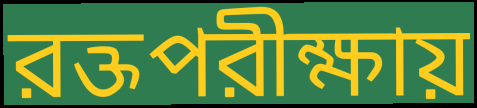
রক্তপরীক্ষায়